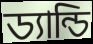
ড্যান্ডি